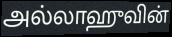
அல்லாஹுவின்